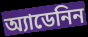
অ্যাডেনিন